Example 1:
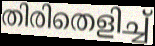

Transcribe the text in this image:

തിരിതെളിച്ച്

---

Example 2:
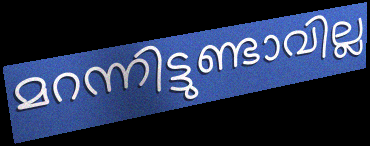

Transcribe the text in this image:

മറന്നിട്ടുണ്ടാവില്ല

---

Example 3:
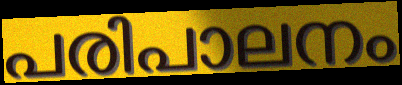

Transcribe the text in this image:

പരിപാലനം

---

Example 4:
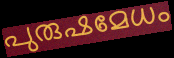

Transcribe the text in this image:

പുരുഷമേധം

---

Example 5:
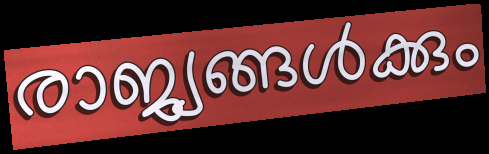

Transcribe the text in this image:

രാജ്യങ്ങൾക്കും